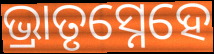
ଭ୍ରାତୃସ୍ନେହେ